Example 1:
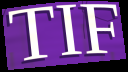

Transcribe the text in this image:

TIF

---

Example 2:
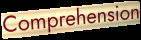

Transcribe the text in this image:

Comprehension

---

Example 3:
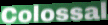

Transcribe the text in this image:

Colossal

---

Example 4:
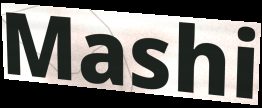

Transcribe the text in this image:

Mashi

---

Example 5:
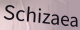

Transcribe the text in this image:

Schizaea